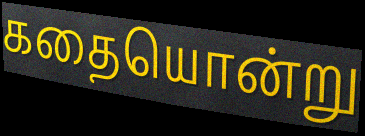
கதையொன்று